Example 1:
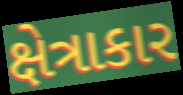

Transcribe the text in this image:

ક્ષેત્રાકાર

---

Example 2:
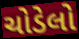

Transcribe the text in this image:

ચોડેલો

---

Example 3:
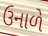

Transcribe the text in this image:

ઉનાળે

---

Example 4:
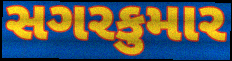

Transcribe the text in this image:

સગરકુમાર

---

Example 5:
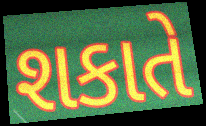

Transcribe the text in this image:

શકાતે